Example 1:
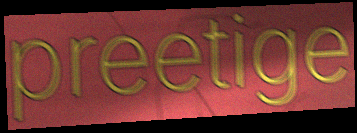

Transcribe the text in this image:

preetige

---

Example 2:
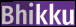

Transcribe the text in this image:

Bhikku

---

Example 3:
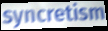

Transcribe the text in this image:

syncretism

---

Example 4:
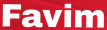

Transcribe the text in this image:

Favim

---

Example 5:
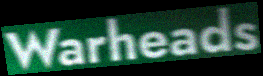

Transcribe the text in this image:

Warheads